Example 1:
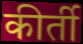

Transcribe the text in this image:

कीर्ती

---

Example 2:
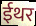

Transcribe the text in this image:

ईथर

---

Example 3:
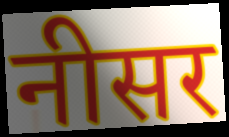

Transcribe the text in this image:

नीसर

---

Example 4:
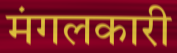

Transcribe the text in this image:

मंगलकारी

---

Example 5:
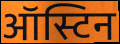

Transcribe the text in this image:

ऑस्टिन